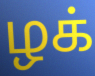
ழக்